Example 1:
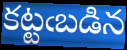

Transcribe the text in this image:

కట్టఁబడిన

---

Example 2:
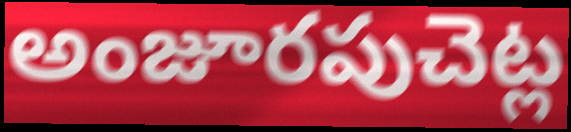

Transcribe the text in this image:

అంజూరపుచెట్ల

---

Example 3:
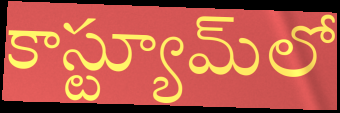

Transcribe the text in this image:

కాస్ట్యూమ్‌లో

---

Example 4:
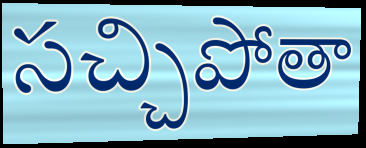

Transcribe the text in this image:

సచ్చిపోతా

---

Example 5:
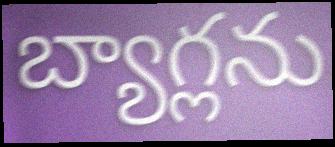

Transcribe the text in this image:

బ్యాగ్లను